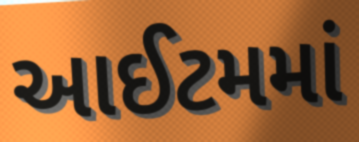
આઈટમમાં